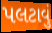
પલટાવું